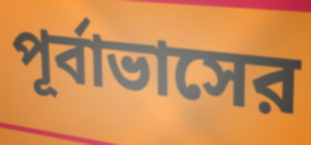
পূর্বাভাসের